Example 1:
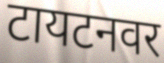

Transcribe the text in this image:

टायटनवर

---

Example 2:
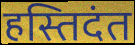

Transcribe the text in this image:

हस्तिदंत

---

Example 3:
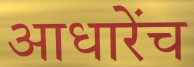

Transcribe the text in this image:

आधारेंच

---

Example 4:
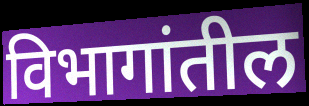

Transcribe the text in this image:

विभागांतील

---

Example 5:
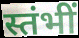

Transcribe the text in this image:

स्तंभीं